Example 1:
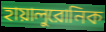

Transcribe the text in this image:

হায়ালুরোনিক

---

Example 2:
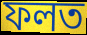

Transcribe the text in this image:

ফলত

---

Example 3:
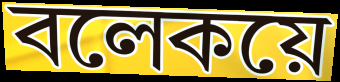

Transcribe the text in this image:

বলেকয়ে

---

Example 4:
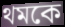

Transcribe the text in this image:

থমকে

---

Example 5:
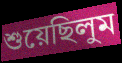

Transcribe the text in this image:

শুয়েছিলুম